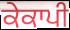
ਕੇਕਾਪੀ